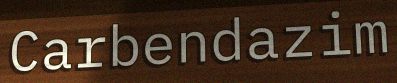
Carbendazim